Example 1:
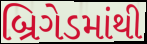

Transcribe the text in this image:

બ્રિગેડમાંથી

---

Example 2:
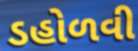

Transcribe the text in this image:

ડહોળવી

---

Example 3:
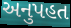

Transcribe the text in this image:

અનુપહત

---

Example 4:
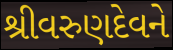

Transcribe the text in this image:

શ્રીવરુણદેવને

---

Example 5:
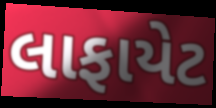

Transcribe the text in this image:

લાફાયેટ